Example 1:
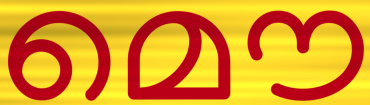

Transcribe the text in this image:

മൌ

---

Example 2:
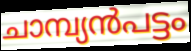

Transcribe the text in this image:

ചാമ്പ്യൻപട്ടം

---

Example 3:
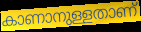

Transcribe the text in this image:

കാണാനുള്ളതാണ്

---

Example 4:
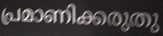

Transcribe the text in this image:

പ്രമാണിക്കരുതു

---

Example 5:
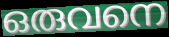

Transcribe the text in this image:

ഒരുവനെ